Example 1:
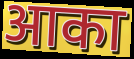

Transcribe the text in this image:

आका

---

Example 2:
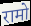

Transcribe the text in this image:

रामो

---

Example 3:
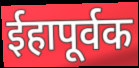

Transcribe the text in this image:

ईहापूर्वक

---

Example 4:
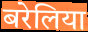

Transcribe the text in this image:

बरेलिया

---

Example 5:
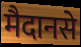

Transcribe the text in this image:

मैदानसे